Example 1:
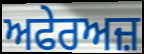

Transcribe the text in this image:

ਅਫੇਰਅਜ਼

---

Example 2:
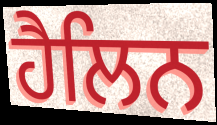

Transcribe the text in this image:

ਹੈਲਿਨ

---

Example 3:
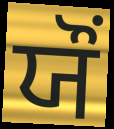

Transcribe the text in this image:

ਯੌਂ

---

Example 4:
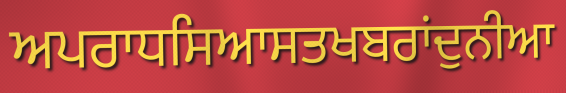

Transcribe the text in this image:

ਅਪਰਾਧਸਿਆਸਤਖਬਰਾਂਦੁਨੀਆ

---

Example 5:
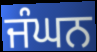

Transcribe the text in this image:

ਜੰਘਨ